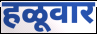
हळूवार